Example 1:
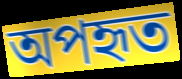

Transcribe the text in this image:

অপহৃত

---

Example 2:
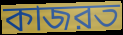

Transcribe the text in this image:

কাজরত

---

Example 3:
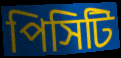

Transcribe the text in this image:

পিসিটি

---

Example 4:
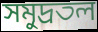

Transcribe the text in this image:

সমুদ্রতল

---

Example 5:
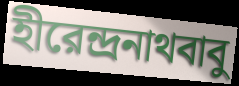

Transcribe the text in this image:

হীরেন্দ্রনাথবাবু